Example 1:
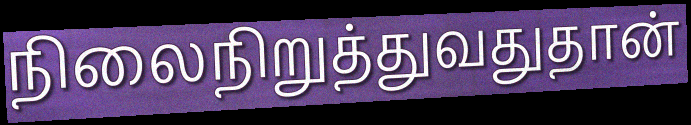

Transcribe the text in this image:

நிலைநிறுத்துவதுதான்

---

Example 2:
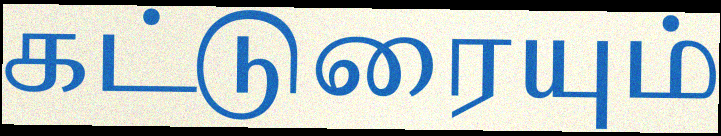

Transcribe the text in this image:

கட்டுரையும்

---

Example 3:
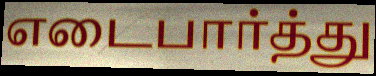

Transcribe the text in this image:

எடைபார்த்து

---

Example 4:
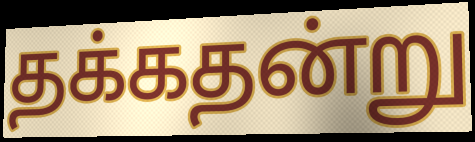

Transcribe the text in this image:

தக்கதன்று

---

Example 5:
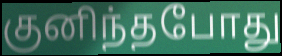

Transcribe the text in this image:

குனிந்தபோது